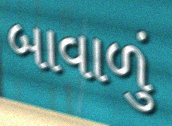
બાવાળું